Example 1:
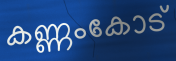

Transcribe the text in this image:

കണ്ണംകോട്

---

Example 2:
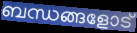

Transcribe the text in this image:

ബന്ധങ്ങളോട്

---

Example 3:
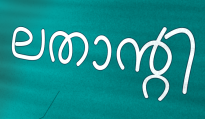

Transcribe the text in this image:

ലതാന്റി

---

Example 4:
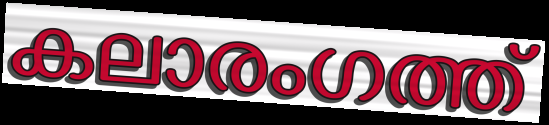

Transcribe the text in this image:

കലാരംഗത്ത്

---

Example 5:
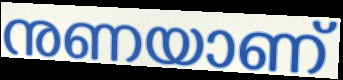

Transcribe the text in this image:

നുണയാണ്